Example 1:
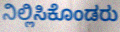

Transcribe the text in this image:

ನಿಲ್ಲಿಸಿಕೊಂಡರು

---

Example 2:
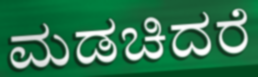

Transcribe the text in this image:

ಮಡಚಿದರೆ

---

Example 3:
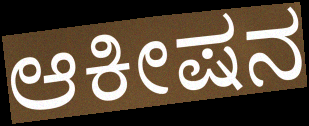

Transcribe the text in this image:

ಆಕೀಷನ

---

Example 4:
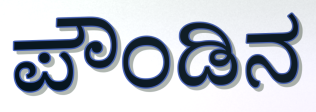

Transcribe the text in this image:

ಪೌಂಡಿನ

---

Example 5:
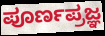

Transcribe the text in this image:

ಪೂರ್ಣಪ್ರಜ್ಞ